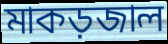
মাকড়জাল